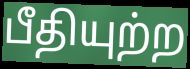
பீதியுற்ற